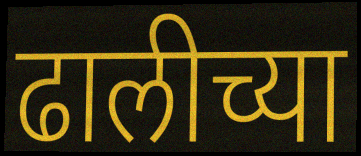
ढालीच्या